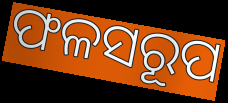
ଫଳସରୂପ